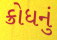
ક્રોધનું